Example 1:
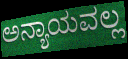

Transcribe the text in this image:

ಅನ್ಯಾಯವಲ್ಲ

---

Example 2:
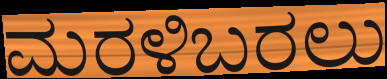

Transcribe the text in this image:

ಮರಳಿಬರಲು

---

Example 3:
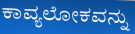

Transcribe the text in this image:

ಕಾವ್ಯಲೋಕವನ್ನು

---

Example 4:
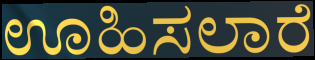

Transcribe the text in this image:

ಊಹಿಸಲಾರೆ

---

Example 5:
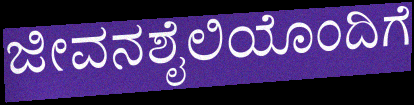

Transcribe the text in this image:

ಜೀವನಶೈಲಿಯೊಂದಿಗೆ